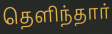
தெளிந்தார்